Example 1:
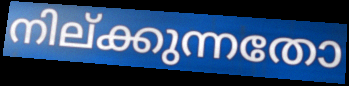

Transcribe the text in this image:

നില്ക്കുന്നതോ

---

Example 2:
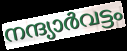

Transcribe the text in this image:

നന്ദ്യാർവട്ടം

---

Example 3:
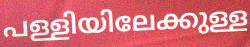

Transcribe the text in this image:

പള്ളിയിലേക്കുള്ള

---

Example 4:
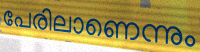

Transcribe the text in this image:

പേരിലാണെന്നും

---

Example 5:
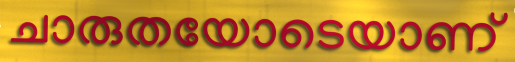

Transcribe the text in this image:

ചാരുതയോടെയാണ്